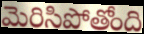
మెరిసిపోతోంది